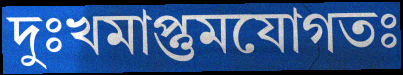
দুঃখমাপ্তুমযোগতঃ